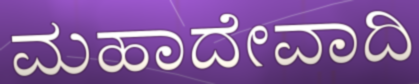
ಮಹಾದೇವಾದಿ